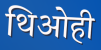
थिओही